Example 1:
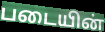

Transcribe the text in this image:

படையின்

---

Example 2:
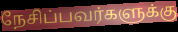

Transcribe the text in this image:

நேசிப்பவர்களுக்கு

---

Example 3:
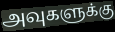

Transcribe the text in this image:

அவுகளுக்கு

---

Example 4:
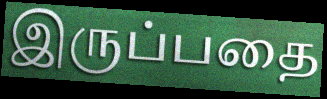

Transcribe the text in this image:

இருப்பதை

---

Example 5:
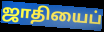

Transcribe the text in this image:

ஜாதியைப்